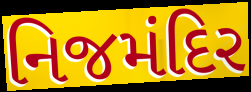
નિજમંદિર